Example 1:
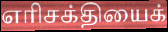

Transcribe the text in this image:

எரிசக்தியைக்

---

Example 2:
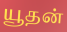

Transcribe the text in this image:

யூதன்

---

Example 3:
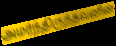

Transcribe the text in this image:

அமர்ந்திருந்தவனின்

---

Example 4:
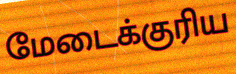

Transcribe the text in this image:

மேடைக்குரிய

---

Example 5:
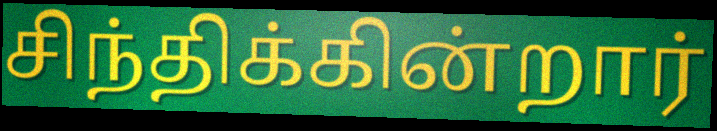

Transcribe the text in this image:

சிந்திக்கின்றார்